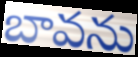
బావను